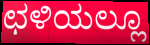
ಛಳಿಯಲ್ಲೂ